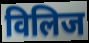
विलिज